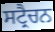
ਸਟ੍ਰੈਚਨ